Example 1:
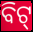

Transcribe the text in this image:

ବିଟ୍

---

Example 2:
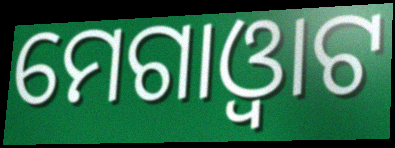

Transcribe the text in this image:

ମେଗାଓ୍ଵାଟ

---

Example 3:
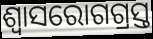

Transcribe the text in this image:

ଶ୍ୱାସରୋଗଗ୍ରସ୍ତ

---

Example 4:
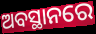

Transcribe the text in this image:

ଅବସ୍ଥାନରେ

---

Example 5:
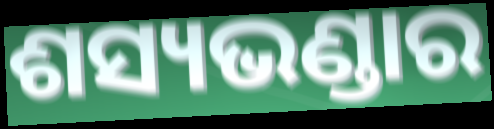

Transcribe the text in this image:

ଶସ୍ୟଭଣ୍ଡାର